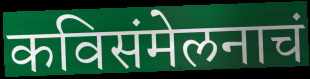
कविसंमेलनाचं